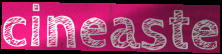
cineaste